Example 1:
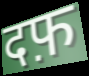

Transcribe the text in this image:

दफ़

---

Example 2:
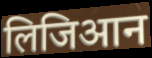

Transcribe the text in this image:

लिजिआन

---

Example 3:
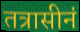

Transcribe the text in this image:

तत्रासीनं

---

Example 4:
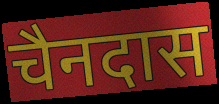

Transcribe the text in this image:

चैनदास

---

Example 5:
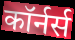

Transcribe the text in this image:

कॉर्नर्स